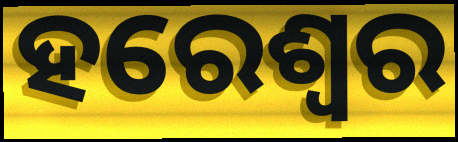
ହରେଶ୍ୱର